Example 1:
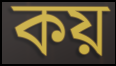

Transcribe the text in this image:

কয়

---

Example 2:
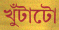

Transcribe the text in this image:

খুঁটাটো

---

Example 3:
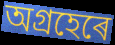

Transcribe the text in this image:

অগ্ৰহেৰে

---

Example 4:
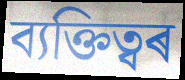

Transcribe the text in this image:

ব্যক্তিত্বৰ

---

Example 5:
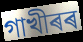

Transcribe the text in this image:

গাখীৰৰ